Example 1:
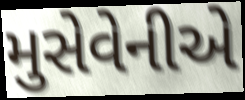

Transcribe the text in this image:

મુસેવેનીએ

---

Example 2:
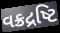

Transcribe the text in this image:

વક્રદ્રષ્ટિ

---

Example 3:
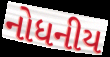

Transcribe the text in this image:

નોધનીય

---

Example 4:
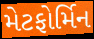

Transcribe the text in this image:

મેટફોર્મિન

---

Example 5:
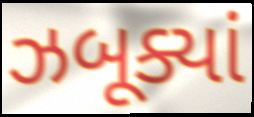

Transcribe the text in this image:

ઝબૂક્યાં